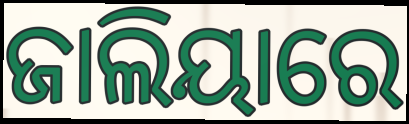
ଜାଲିୟାରେ